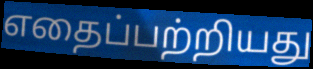
எதைப்பற்றியது